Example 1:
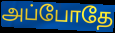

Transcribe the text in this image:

அப்போதே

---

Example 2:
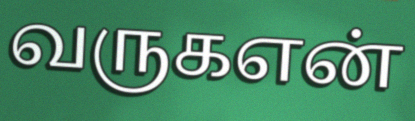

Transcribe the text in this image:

வருகஎன்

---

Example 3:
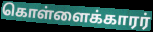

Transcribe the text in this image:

கொள்ளைக்காரர்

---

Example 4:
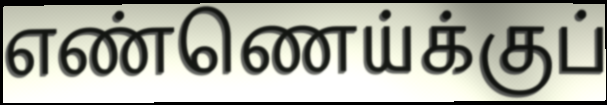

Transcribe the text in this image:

எண்ணெய்க்குப்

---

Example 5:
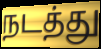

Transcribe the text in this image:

நடத்து